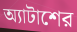
অ্যাটাশের